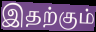
இதற்கும்